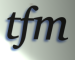
tfm